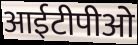
आईटीपीओ